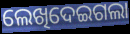
ଲେଖିଦେଇଗଲା